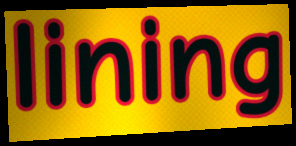
lining